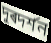
দুৰদৰ্শন